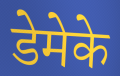
डेमेके